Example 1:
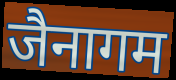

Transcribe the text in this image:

जैनागम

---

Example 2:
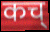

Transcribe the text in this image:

कच्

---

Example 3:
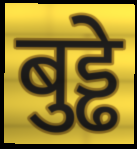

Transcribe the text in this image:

बुड्ढे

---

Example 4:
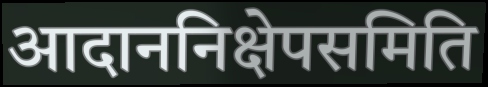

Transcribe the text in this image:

आदाननिक्षेपसमिति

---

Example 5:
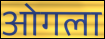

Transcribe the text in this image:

ओगला